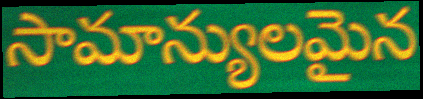
సామాన్యులమైన